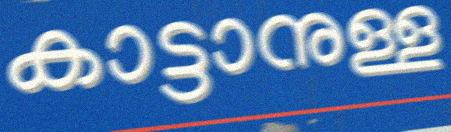
കാട്ടാനുള്ള